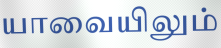
யாவையிலும்